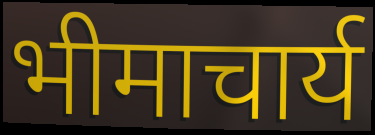
भीमाचार्य